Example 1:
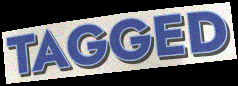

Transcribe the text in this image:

TAGGED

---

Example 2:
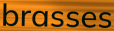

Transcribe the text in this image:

brasses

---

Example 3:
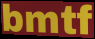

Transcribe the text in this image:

bmtf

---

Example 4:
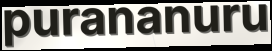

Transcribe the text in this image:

purananuru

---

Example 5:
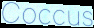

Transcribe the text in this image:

Coccus